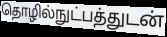
தொழில்நுட்பத்துடன்